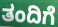
ತಂದಿಗೆ